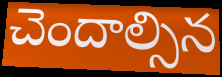
చెందాల్సిన